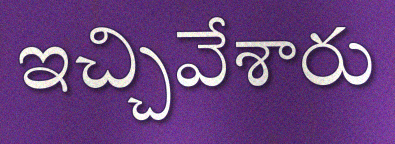
ఇచ్చివేశారు